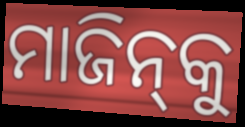
ମାଜିନ୍‌କୁ